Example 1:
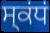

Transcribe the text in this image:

ਸ੍ਕਂਧਂ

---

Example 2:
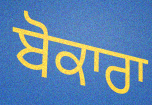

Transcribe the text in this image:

ਬੋਕਾਰਾ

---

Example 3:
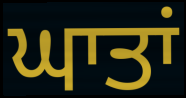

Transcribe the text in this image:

ਘਾਤਾਂ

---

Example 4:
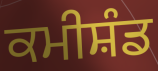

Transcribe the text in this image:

ਕਮੀਸ਼ੰਡ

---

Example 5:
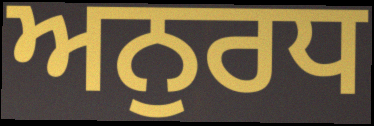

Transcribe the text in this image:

ਅਨੁਰਧ